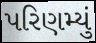
પરિણમ્યું